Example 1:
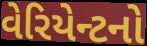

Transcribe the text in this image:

વેરિયેન્ટનો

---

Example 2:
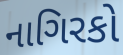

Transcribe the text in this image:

નાગિરકો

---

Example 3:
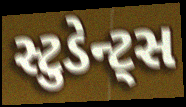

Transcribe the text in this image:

સ્ટુડેન્ટ્સ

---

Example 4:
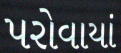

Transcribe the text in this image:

પરોવાયાં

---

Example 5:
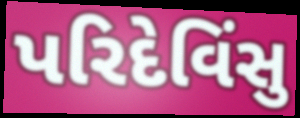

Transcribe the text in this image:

પરિદેવિંસુ